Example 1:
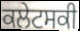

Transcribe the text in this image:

ਕਲੇਟਸਕੀ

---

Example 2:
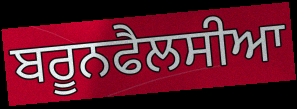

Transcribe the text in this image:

ਬਰੂਨਫੈਲਸੀਆ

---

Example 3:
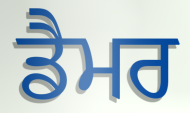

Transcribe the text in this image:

ਡੈਮਰ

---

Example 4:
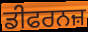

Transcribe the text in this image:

ਡੀਫਰਨਜ਼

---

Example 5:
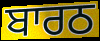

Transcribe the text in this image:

ਬਾਰਠ